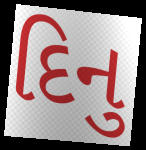
દિનુ